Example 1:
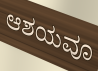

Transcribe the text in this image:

ಆಶಯವೂ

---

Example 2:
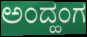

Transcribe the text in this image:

ಅಂದ್ಹಂಗ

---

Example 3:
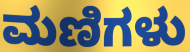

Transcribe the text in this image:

ಮಣಿಗಳು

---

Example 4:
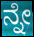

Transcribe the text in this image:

ನ್ನೇ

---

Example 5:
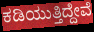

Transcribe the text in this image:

ಕಡಿಯುತ್ತಿದ್ದೇವೆ